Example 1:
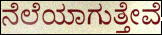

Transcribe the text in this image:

ನೆಲೆಯಾಗುತ್ತೇವೆ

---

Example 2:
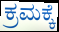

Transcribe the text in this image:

ಕ್ರಮಕ್ಕೆ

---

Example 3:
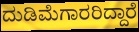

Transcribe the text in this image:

ದುಡಿಮೆಗಾರರಿದ್ದಾರೆ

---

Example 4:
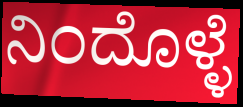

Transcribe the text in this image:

ನಿಂದೊಳ್ಳೆ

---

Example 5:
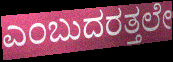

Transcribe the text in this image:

ಎಂಬುದರತ್ತಲೇ